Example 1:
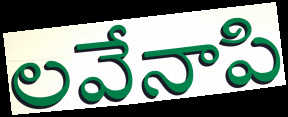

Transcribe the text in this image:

లవేనాపి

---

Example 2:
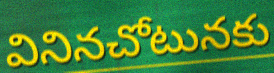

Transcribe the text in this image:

వినినచోటునకు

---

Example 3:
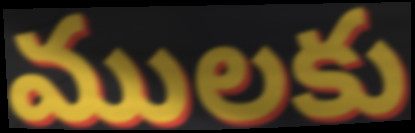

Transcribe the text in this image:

ములకు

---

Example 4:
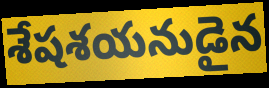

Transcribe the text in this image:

శేషశయనుడైన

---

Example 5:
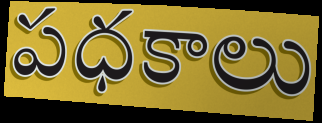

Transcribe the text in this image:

పధకాలు